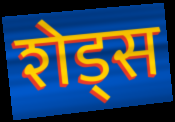
शेड्स